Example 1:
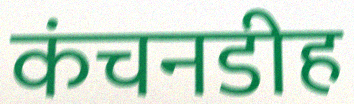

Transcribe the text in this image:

कंचनडीह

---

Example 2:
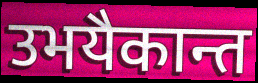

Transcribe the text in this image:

उभयैकान्त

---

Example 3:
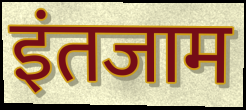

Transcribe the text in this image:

इंतजाम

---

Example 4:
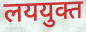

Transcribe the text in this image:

लययुक्त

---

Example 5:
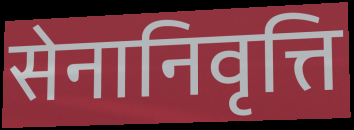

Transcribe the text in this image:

सेनानिवृत्ति